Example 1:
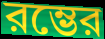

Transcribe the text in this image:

রম্ভের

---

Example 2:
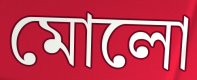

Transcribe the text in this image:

মোলো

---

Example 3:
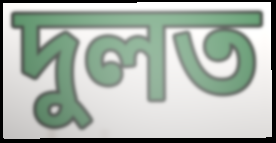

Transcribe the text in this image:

দুলত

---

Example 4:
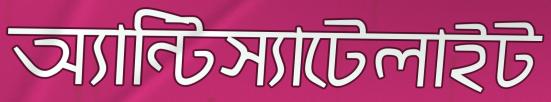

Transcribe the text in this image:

অ্যান্টিস্যাটেলাইট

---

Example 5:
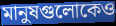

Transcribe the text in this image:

মানুষগুলোকেও